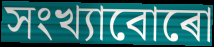
সংখ্যাবোৰো